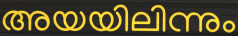
അയയിലിന്നും